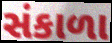
સંકાળા